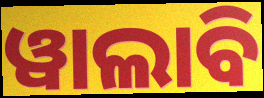
ୱାଲାବି